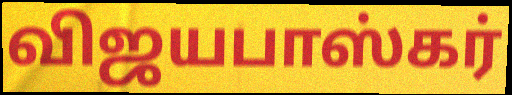
விஜயபாஸ்கர்